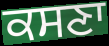
ਕਸਣਾ